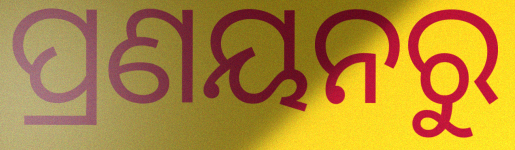
ପ୍ରଣୟନରୁ